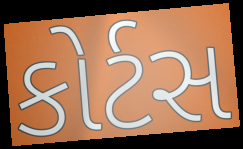
કોર્ટસ